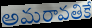
అమరావతికే